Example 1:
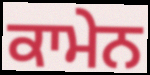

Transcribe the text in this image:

ਕਾਮੇਨ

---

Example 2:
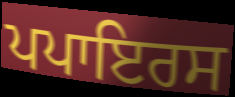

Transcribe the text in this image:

ਪਪਾਇਰਸ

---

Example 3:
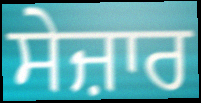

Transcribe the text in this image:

ਸੇਜ਼ਾਰ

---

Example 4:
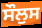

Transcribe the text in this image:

ਸੌਲੁਸ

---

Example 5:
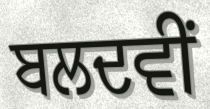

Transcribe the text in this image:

ਬਲਦਵੀਂ